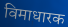
विमाधारक